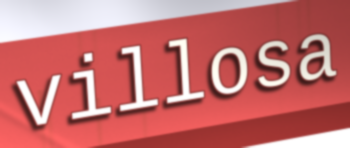
villosa